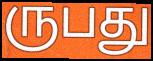
ருபது